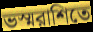
ভস্মরাশিতে